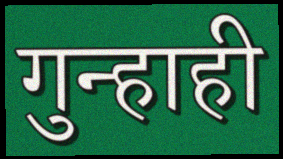
गुन्हाही